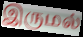
இருமல்